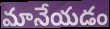
మానేయడం